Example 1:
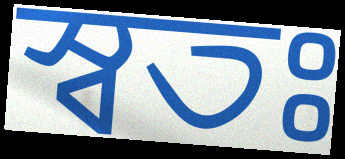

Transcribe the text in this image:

স্বতঃ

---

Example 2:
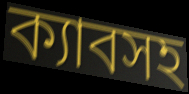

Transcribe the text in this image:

ক্যাবসহ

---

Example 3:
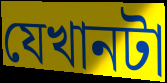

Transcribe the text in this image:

যেখানটা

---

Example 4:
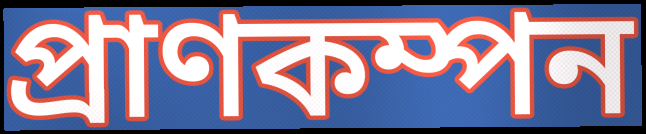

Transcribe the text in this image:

প্রাণকম্পন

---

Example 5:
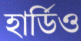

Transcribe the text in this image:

হার্ডিও